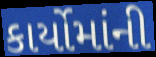
કાર્યોમાંની